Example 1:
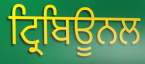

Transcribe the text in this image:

ਟ੍ਰਿਬਿਊਨਲ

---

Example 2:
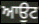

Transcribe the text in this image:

ਆਉਟ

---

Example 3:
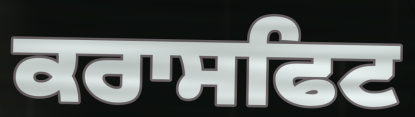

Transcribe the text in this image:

ਕਰਾਸਫਿਟ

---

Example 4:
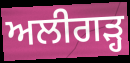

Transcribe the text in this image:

ਅਲੀਗੜ੍ਹ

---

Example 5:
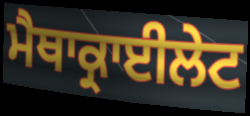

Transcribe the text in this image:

ਮੈਥਾਕ੍ਰਾਈਲੇਟ